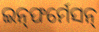
ଇନ୍‍ଫର୍ମେସନ୍